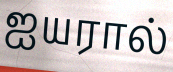
ஐயரால்